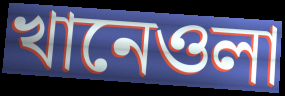
খানেওলা